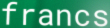
francs